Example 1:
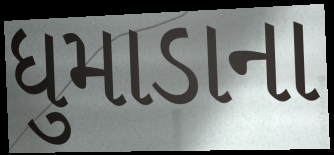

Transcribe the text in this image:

ધુમાડાના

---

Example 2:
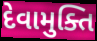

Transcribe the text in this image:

દેવામુક્તિ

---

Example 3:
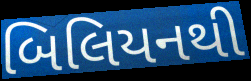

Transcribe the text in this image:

બિલિયનથી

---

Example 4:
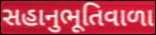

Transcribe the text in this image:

સહાનુભૂતિવાળા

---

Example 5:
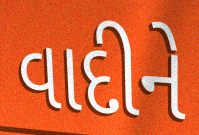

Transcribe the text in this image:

વાદીને